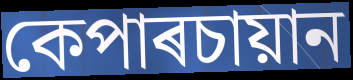
কেপাৰচায়ান